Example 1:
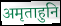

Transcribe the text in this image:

अमृताहुनि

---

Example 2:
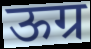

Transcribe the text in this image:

ऊग्र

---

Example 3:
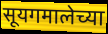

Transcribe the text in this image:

सूयगमालेच्या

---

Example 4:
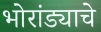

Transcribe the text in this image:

भोरांड्याचे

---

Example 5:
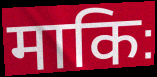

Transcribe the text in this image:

माकिः